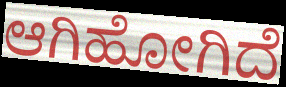
ಆಗಿಹೋಗಿದೆ